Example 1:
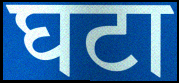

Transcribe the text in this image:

घटा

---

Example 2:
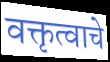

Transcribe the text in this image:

वक्तृत्वाचे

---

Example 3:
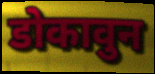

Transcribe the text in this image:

डोकावुन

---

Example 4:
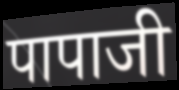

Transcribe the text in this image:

पापाजी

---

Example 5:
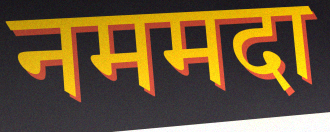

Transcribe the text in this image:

नममदा